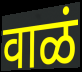
वाळं